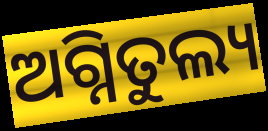
ଅଗ୍ନିତୁଲ୍ୟ